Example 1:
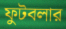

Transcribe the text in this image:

ফুটবলার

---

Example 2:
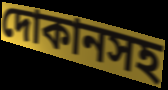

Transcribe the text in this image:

দোকানসহ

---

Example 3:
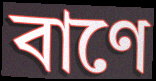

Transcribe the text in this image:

বাণে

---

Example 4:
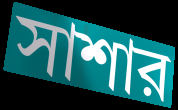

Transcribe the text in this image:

সাশার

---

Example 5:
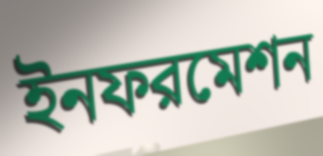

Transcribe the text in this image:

ইনফরমেশন